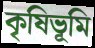
কৃষিভূমি